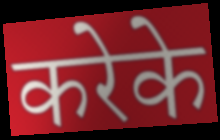
करेके